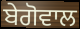
ਬੇਗੋਵਾਲ